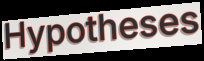
Hypotheses